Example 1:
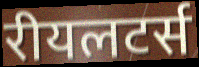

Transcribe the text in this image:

रीयलटर्स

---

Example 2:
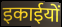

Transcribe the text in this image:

इकाईयों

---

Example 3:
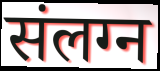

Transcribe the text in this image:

संलग्न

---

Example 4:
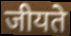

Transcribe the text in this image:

जीयते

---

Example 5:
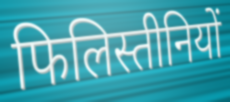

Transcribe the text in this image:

फिलिस्तीनियों